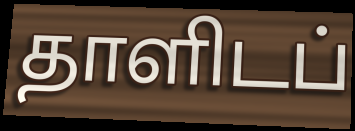
தாளிடப்